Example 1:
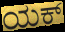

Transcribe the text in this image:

ಯಕ್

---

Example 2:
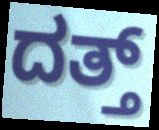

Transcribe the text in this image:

ದತ್ತ್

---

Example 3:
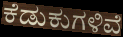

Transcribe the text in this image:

ಕೆಡುಕುಗಳಿವೆ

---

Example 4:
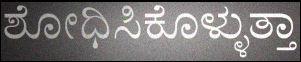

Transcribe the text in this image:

ಶೋಧಿಸಿಕೊಳ್ಳುತ್ತಾ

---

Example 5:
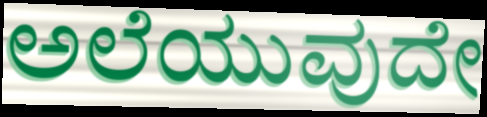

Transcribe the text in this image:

ಅಲೆಯುವುದೇ